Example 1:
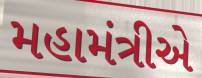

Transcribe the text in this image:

મહામંત્રીએ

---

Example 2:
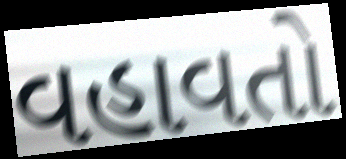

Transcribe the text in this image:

વહાવતો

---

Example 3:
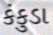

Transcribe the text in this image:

કંકુડા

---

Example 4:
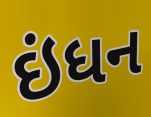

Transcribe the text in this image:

ઇંધન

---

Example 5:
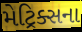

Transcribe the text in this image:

મેટ્રિક્સના